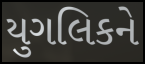
યુગલિકને